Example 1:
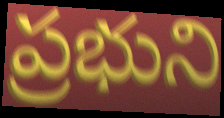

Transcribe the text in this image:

ప్రభుని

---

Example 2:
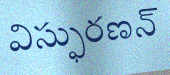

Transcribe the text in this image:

విస్ఫురణన్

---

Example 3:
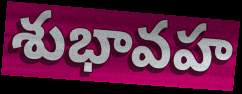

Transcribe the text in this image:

శుభావహ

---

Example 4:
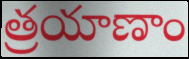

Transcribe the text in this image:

త్రయాణాం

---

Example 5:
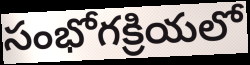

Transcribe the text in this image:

సంభోగక్రియలో